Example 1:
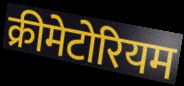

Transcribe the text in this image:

क्रीमेटोरियम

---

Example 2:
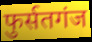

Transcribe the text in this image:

फुर्सतगंज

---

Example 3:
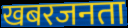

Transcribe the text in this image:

खबरजनता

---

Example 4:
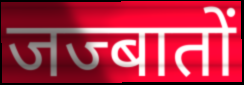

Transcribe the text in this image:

जज्बातों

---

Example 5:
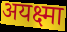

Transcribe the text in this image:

अयक्ष्मा